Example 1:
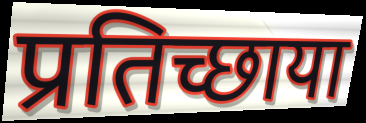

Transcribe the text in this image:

प्रतिच्छाया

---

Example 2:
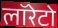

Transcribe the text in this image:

लॉरेटो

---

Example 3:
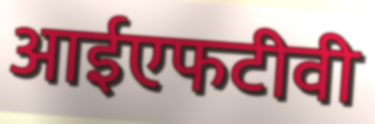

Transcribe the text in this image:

आईएफटीवी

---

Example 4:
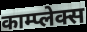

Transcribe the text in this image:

काम्प्लेक्स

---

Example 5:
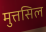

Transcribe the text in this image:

मुत्तसिल